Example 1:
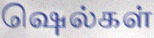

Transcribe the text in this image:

ஷெல்கள்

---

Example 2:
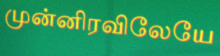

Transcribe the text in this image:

முன்னிரவிலேயே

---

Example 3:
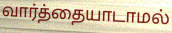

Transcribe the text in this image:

வார்த்தையாடாமல்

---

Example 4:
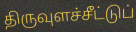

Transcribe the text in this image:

திருவுளச்சீட்டுப்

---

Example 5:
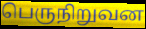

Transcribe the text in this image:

பெருநிறுவன